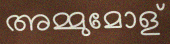
അമ്മുമോള്